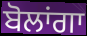
ਬੋਲਾਂਗਾ